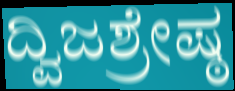
ದ್ವಿಜಶ್ರೇಷ್ಠ